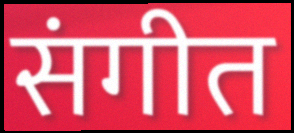
संगीत